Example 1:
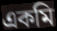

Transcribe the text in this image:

একমি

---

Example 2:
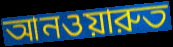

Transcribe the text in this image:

আনওয়ারুত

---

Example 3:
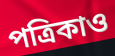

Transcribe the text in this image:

পত্রিকাও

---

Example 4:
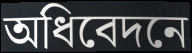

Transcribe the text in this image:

অধিবেদনে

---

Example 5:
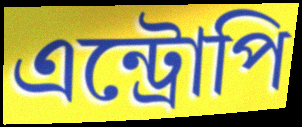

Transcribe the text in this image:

এন্ট্রোপি